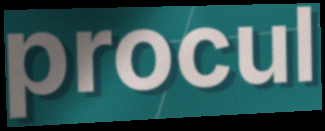
procul